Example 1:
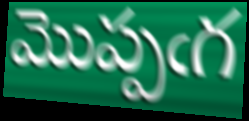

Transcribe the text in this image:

మొప్పఁగ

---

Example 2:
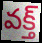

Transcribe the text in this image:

వక్త్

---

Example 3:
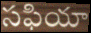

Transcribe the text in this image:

సఫియా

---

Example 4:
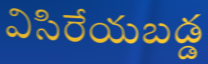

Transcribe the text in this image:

విసిరేయబడ్డ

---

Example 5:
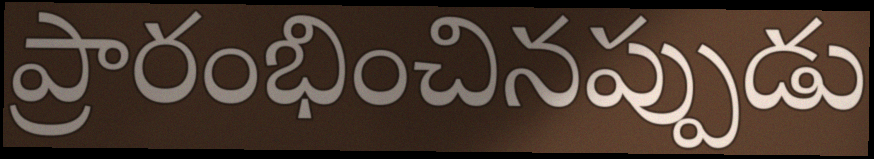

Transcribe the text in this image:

ప్రారంభించినప్పుడు